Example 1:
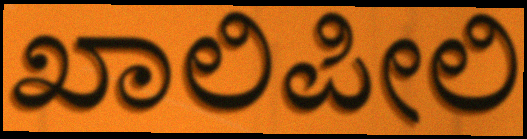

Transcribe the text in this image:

ಖಾಲಿಪೀಲಿ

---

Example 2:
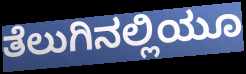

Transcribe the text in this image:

ತೆಲುಗಿನಲ್ಲಿಯೂ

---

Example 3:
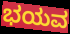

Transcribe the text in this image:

ಭಯವ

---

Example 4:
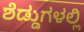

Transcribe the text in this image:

ಶೆಡ್ಡುಗಳಲ್ಲಿ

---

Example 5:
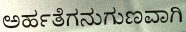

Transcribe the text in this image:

ಅರ್ಹತೆಗನುಗುಣವಾಗಿ